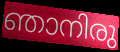
ഞാനിരു